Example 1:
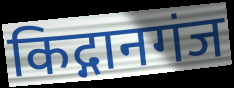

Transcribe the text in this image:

किद्गानगंज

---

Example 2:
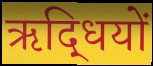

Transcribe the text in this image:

ऋद्धियों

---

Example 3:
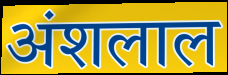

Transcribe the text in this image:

अंशलाल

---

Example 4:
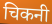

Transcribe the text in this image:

चिकनी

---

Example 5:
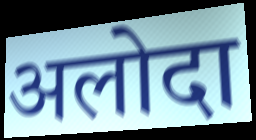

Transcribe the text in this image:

अलोदा